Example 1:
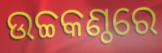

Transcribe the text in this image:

ଉଚ୍ଚକଣ୍ଠରେ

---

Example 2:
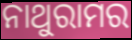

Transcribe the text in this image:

ନାଥୁରାମର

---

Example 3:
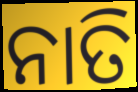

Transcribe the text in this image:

ନାତି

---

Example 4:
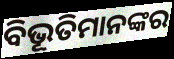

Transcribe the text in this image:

ବିଭୂତିମାନଙ୍କର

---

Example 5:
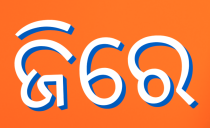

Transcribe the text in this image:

ଜିରେ